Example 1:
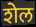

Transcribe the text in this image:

शेल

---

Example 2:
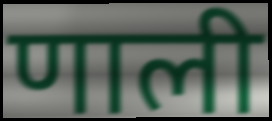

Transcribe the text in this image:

णाली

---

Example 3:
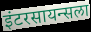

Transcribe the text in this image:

इंटरसायन्सला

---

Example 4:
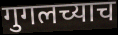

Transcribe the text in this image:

गुगलच्याच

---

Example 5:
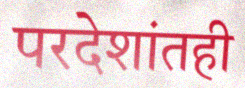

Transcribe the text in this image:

परदेशांतही